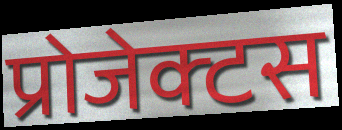
प्रोजेक्‍टस